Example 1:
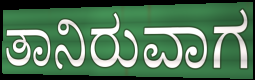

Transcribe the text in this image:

ತಾನಿರುವಾಗ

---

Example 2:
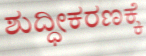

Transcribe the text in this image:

ಶುದ್ಧೀಕರಣಕ್ಕೆ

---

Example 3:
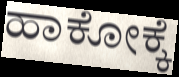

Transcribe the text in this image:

ಹಾಕೋಕ್ಕೆ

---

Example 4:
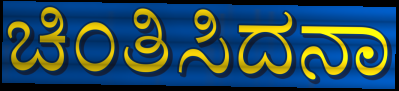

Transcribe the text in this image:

ಚಿಂತಿಸಿದನಾ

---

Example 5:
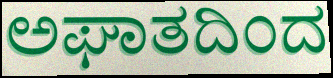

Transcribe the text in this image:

ಅಘಾತದಿಂದ